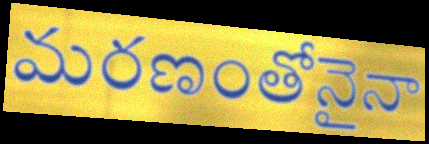
మరణంతోనైనా